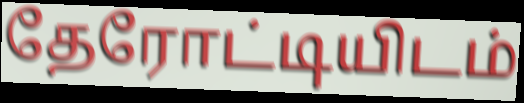
தேரோட்டியிடம்